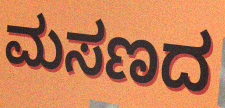
ಮಸಣದ